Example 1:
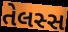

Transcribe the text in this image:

તેલસ્સ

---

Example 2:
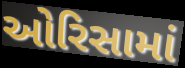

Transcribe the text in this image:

ઓરિસામાં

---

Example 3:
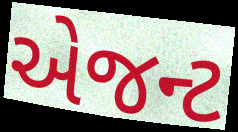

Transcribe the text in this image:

એજન્ટ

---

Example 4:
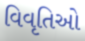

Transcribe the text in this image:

વિવૃતિઓ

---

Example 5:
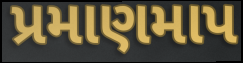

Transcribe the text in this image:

પ્રમાણમાપ